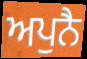
ਅਪੁਨੈ